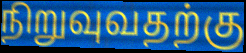
நிறுவுவதற்கு